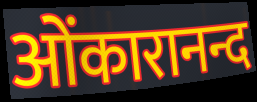
ओंकारानन्द